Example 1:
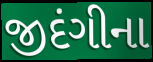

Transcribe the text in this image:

જીદંગીના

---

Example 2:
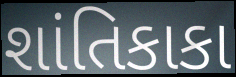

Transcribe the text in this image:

શાંતિકાકા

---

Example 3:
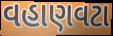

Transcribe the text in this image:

વહાણવટા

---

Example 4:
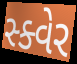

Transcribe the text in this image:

સ્ક્વેર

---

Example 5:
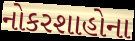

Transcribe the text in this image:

નોકરશાહોના